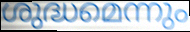
ശുദ്ധമെന്നും